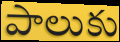
పాలుకు